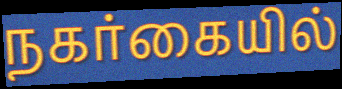
நகர்கையில்